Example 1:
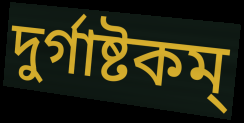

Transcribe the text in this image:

দুর্গাষ্টকম্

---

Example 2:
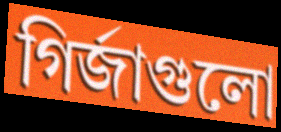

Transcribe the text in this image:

গির্জাগুলো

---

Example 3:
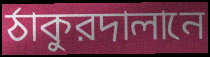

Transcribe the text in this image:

ঠাকুরদালানে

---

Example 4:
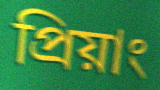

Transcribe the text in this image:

প্রিয়াং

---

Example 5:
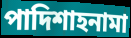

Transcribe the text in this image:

পাদিশাহনামা